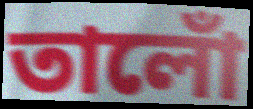
তালোঁ